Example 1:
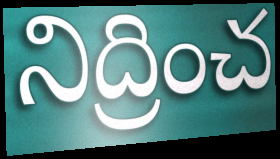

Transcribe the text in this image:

నిద్రించ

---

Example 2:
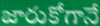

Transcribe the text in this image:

జారుకోగానే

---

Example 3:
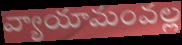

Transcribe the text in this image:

వ్యాయామంవల్ల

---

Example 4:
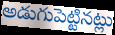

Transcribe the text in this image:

అడుగుపెట్టినట్లు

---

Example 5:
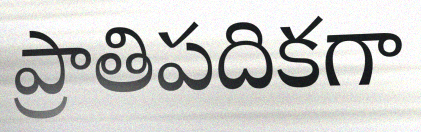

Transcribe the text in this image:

ప్రాతిపదికగా